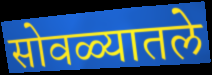
सोवळ्यातले